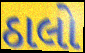
ઠાલો